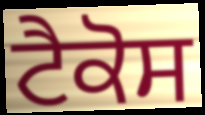
ਟੈਕੋਸ